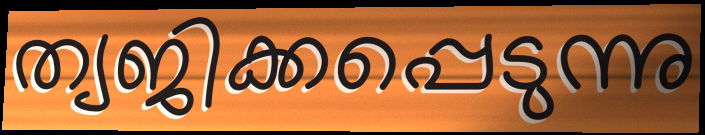
ത്യജിക്കപ്പെടുന്നു